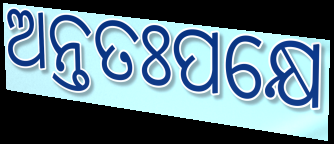
ଅନ୍ତତଃପକ୍ଷେ